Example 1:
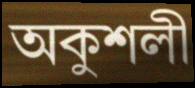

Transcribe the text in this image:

অকুশলী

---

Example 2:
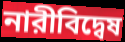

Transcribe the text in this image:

নারীবিদ্বেষ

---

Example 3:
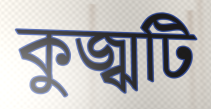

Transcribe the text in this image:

কুজ্ঝটি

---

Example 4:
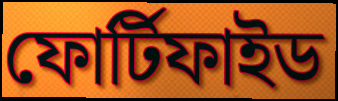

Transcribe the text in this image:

ফোর্টিফাইড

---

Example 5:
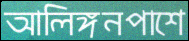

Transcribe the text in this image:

আলিঙ্গনপাশে